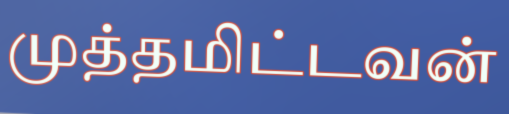
முத்தமிட்டவன்